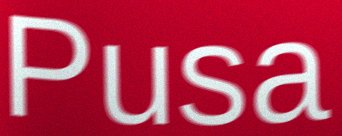
Pusa